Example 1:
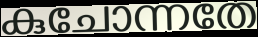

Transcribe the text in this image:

കുചോന്നതേ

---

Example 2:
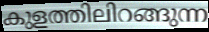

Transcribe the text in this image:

കുളത്തിലിറങ്ങുന്ന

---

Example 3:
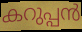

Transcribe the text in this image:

കറുപ്പൻ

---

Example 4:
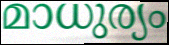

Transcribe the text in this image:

മാധുര്യം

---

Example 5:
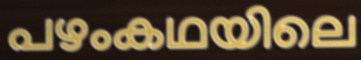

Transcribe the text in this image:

പഴംകഥയിലെ